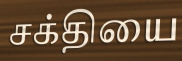
சக்தியை